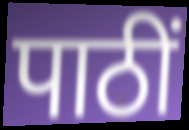
पाठीं